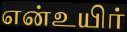
என்உயிர்